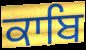
ਕਾਬਿ